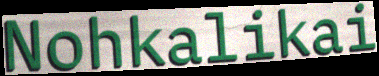
Nohkalikai